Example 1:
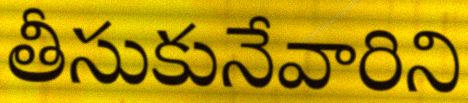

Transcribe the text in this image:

తీసుకునేవారిని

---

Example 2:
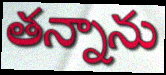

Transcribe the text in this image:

తన్నాను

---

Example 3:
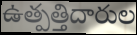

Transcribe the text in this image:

ఉత్పత్తిదారుల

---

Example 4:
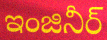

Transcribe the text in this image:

ఇంజినీర్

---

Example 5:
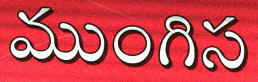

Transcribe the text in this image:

ముంగిస